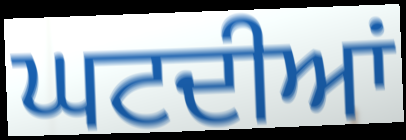
ਘਟਦੀਆਂ